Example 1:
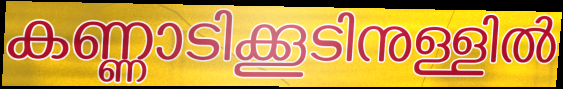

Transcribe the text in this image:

കണ്ണാടിക്കൂടിനുള്ളിൽ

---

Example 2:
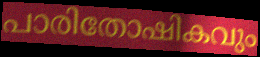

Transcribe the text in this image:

പാരിതോഷികവും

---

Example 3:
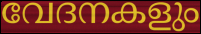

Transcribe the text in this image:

വേദനകളും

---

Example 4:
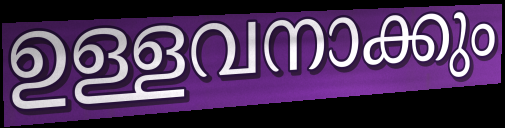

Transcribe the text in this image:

ഉള്ളവനാക്കും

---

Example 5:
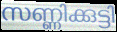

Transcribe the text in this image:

സണ്ണിക്കുട്ടി